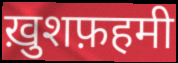
ख़ुशफ़हमी